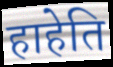
हाहेति